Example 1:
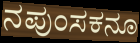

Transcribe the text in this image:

ನಪುಂಸಕನೂ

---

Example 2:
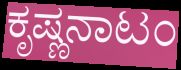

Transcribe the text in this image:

ಕೃಷ್ಣನಾಟಂ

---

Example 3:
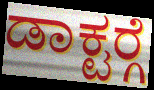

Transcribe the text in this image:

ಡಾಕ್ಟರ್‍ಗೆ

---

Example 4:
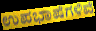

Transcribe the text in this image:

ಉಪಭಾಷೆಗಳಿವೆ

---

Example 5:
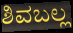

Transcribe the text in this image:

ಶಿವಬಲ್ಲ